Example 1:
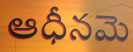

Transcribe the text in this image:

ఆధీనమె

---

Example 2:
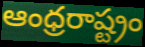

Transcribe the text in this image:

ఆంధ్రరాష్ట్రం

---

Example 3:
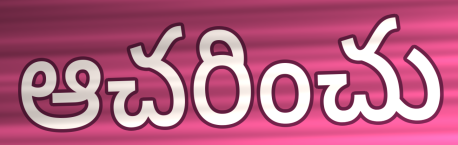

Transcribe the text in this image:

ఆచరించు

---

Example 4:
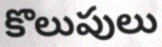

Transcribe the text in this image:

కొలుపులు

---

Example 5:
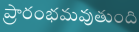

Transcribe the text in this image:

ప్రారంభమవుతుంది